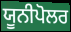
ਯੂਨੀਪੋਲਰ